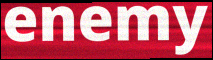
enemy